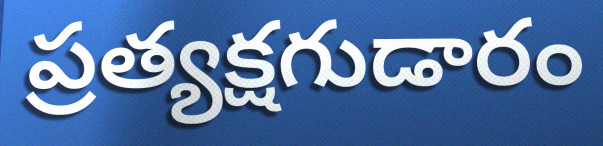
ప్రత్యక్షగుడారం